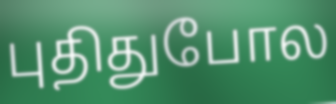
புதிதுபோல